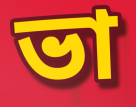
ভা